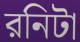
রনিটা